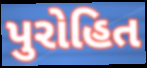
પુરોહિત